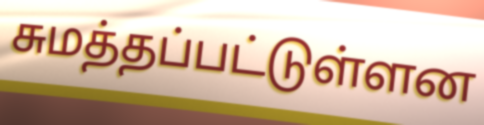
சுமத்தப்பட்டுள்ளன